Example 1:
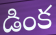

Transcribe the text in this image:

డింక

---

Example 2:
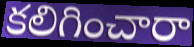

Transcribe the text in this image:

కలిగించారా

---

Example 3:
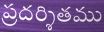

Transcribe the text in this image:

ప్రదర్శితము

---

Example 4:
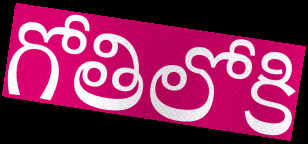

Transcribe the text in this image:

గోతిలోకి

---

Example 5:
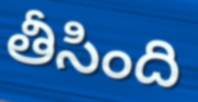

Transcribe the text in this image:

తీసింది